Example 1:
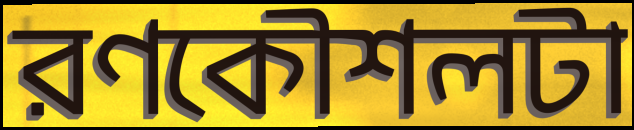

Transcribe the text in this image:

রণকৌশলটা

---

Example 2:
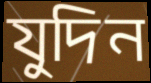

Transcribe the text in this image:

যুদিন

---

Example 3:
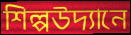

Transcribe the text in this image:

শিল্পউদ্যানে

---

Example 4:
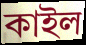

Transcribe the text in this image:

কাইল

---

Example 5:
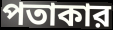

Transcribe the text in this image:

পতাকার